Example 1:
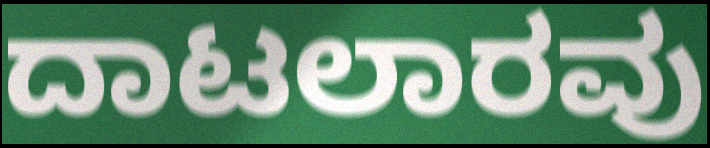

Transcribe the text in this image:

ದಾಟಲಾರವು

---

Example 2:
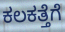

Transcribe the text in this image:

ಕಲಕತ್ತೆಗೆ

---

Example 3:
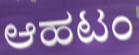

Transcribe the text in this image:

ಆಹಟಂ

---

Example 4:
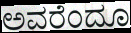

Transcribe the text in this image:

ಅವರೆಂದೂ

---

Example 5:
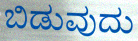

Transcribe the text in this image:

ಬಿಡುವುದು